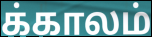
க்காலம்